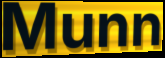
Munn